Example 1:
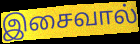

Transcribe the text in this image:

இசைவால்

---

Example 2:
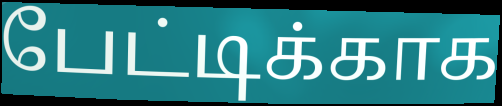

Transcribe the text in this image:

பேட்டிக்காக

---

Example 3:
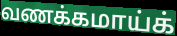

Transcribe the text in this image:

வணக்கமாய்க்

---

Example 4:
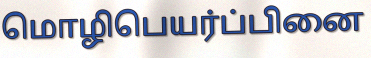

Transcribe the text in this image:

மொழிபெயர்ப்பினை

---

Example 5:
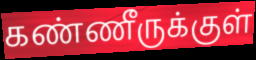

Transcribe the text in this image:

கண்ணீருக்குள்